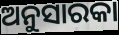
ଅନୁସାରକା